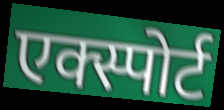
एक्‍स्पोर्ट